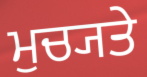
ਮੁਚ੍ਯਤੇ